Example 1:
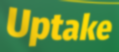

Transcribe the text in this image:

Uptake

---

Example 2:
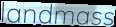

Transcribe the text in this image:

landmass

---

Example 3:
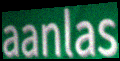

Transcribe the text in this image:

aanlas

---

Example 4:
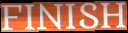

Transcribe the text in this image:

FINISH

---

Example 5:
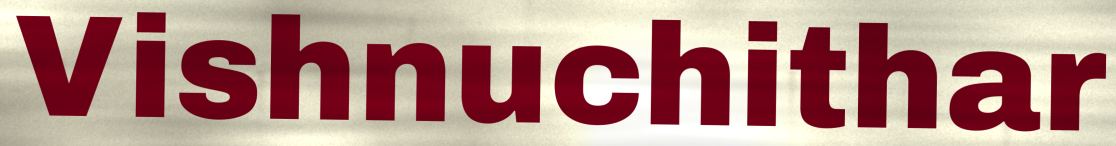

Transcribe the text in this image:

Vishnuchithar